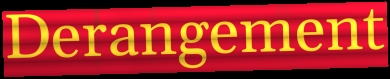
Derangement